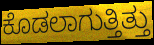
ಕೊಡಲಾಗುತ್ತಿತ್ತು